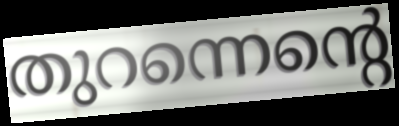
തുറന്നെന്റെ